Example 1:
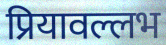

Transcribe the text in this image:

प्रियावल्लभ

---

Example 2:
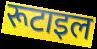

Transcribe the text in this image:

रूटाइल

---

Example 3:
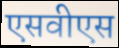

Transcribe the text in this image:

एसवीएस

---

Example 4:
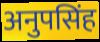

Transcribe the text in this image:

अनुपसिंह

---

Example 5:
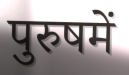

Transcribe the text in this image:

पुरुषमें